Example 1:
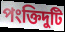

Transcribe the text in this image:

পংক্তিদুটি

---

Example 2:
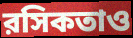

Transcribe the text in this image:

রসিকতাও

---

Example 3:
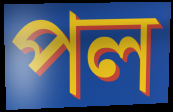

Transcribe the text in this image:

পল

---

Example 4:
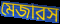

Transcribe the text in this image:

মেজারস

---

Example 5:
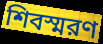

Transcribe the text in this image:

শিবস্মরণ